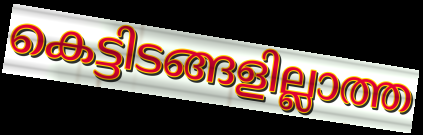
കെട്ടിടങ്ങളില്ലാത്ത